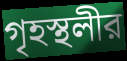
গৃহস্থলীর